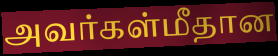
அவர்கள்மீதான